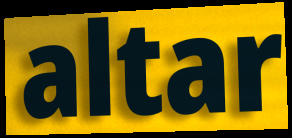
altar